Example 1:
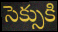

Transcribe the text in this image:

సెక్సుకి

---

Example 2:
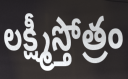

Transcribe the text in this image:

లక్ష్మీస్తోత్రం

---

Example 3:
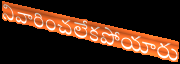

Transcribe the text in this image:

నివారించలేకపోయారు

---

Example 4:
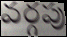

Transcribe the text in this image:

వర్గపు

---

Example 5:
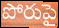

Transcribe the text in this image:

పోరుపై